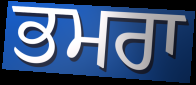
ਭਮਰਾ